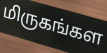
மிருகங்கள